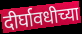
दीर्घावधीच्या